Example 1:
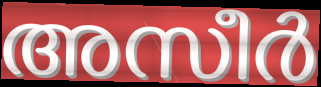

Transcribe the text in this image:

അസീർ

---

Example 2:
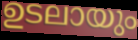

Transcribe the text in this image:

ഉടലായും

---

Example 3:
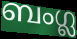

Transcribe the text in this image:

ബംഗ്ല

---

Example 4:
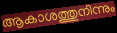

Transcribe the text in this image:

ആകാശത്തുനിന്നും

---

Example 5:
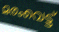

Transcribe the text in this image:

മരംവെട്ട്